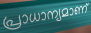
പ്രാധാന്യമാണ്